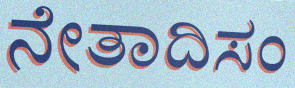
ನೇತಾದಿಸಂ